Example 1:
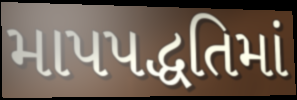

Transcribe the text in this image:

માપપદ્ધતિમાં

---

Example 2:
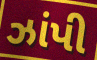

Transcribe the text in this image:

ઝાંપી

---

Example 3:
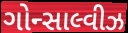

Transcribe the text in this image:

ગોન્સાલ્વીઝ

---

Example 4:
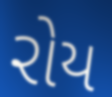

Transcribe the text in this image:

રોય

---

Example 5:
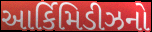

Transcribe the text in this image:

આર્કિમિડીઝનો